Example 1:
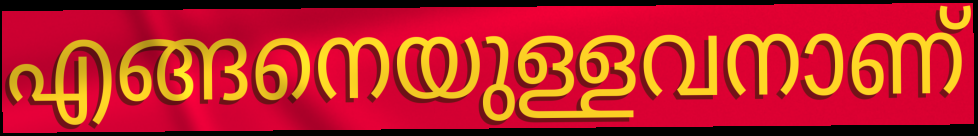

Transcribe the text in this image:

എങ്ങനെയുള്ളവനാണ്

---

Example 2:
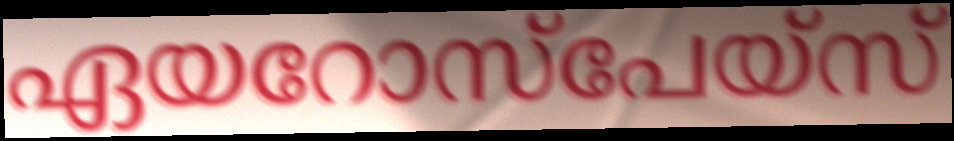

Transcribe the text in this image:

ഏയറോസ്പേയ്സ്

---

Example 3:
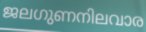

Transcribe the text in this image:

ജലഗുണനിലവാര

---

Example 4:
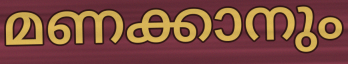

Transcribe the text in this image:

മണക്കാനും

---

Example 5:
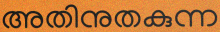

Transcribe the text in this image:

അതിനുതകുന്ന